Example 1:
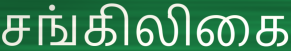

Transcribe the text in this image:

சங்கிலிகை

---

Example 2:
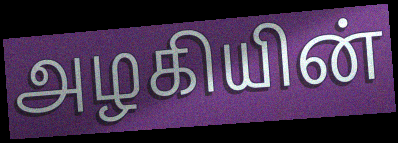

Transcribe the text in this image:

அழகியின்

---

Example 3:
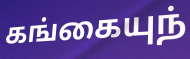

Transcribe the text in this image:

கங்கையுந்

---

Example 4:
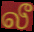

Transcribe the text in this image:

லீ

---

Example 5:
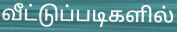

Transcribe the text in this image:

வீட்டுப்படிகளில்